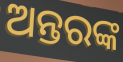
ଅନ୍ତରଙ୍କ